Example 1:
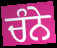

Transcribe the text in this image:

ਚੰਨੇ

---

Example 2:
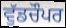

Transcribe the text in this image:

ਵੁੱਡਚੌਪਰ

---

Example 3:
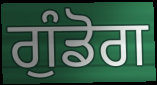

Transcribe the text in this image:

ਗੁੰਡੋਗ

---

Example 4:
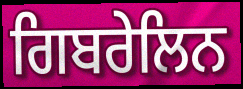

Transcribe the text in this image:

ਗਿਬਰੇਲਿਨ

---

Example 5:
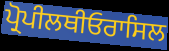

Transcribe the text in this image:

ਪ੍ਰੋਪੀਲਥੀਓਰਾਸਿਲ